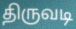
திருவடி